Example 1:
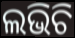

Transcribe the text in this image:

ଲଭିଚି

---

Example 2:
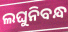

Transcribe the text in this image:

ଲଘୁନିବନ୍ଧ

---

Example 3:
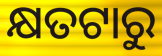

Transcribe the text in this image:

କ୍ଷତଟାରୁ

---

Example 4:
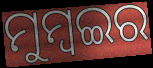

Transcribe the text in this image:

ମୁମ୍ବଇର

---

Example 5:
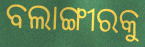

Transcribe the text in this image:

ବଲାଙ୍ଗୀରକୁ